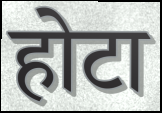
होटा